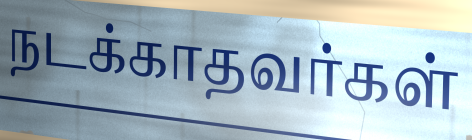
நடக்காதவர்கள்